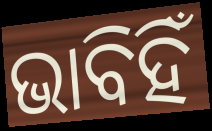
ଭାବିହିଁ